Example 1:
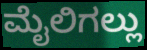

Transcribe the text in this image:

ಮೈಲಿಗಲ್ಲು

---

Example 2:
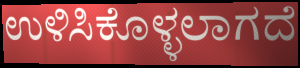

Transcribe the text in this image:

ಉಳಿಸಿಕೊಳ್ಳಲಾಗದೆ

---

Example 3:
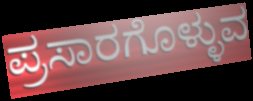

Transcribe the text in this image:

ಪ್ರಸಾರಗೊಳ್ಳುವ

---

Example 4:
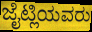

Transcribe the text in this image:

ಜೈಟ್ಲಿಯವರು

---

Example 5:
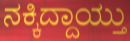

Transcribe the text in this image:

ನಕ್ಕಿದ್ದಾಯ್ತು